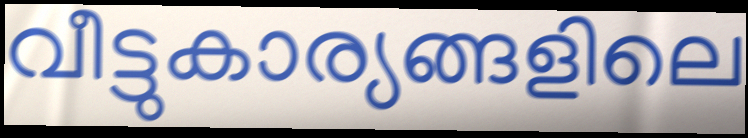
വീട്ടുകാര്യങ്ങളിലെ